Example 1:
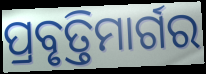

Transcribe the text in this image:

ପ୍ରବୃତ୍ତିମାର୍ଗର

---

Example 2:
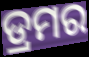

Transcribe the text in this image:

ଡ୍ରମର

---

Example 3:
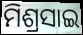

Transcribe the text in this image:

ମିଶ୍ରସାଇ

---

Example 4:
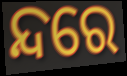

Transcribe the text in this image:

ନ୍ଦରେ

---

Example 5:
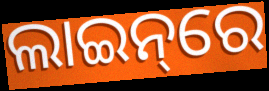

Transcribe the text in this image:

ଲାଇନ୍‌ରେ